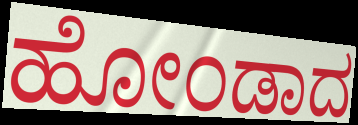
ಹೋಂಡಾದ